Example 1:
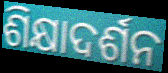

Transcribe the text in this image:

ଶିକ୍ଷାଦର୍ଶନ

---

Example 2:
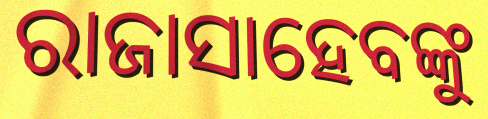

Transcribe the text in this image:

ରାଜାସାହେବଙ୍କୁ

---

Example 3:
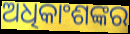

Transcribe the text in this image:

ଅଧିକାଂଶଙ୍କର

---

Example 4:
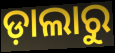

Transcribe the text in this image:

ଡ଼ାଲାରୁ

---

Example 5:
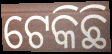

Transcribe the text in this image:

ଟେକିଛି